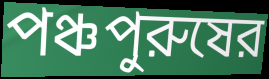
পঞ্চপুরুষের